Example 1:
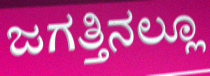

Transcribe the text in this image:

ಜಗತ್ತಿನಲ್ಲೂ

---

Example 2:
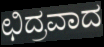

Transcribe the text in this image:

ಛಿದ್ರವಾದ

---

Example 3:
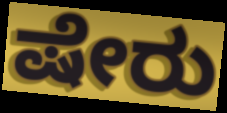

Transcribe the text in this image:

ಷೇರು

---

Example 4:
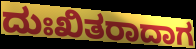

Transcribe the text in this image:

ದುಃಖಿತರಾದಾಗ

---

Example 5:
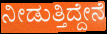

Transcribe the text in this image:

ನೀಡುತ್ತಿದ್ದೇನೆ